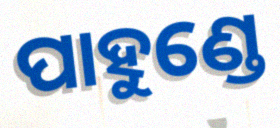
ପାହୁଣ୍ଡେ